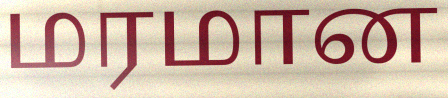
மரமான